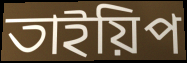
তাইয়িপ